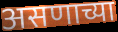
असणाच्या